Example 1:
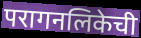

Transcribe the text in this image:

परागनलिकेची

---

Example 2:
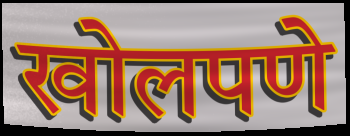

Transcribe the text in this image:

खोलपणे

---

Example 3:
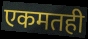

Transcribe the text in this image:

एकमतही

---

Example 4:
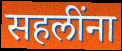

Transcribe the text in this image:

सहलींना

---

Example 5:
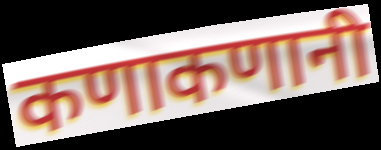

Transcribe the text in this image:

कणाकणानी